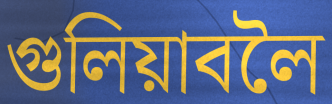
গুলিয়াবলৈ